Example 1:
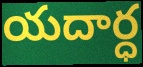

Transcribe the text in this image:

యదార్ధ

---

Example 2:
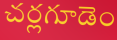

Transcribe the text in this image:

చర్లగూడెం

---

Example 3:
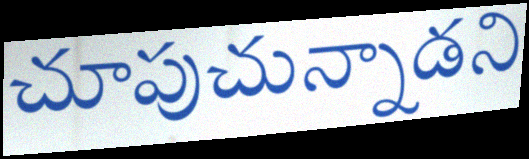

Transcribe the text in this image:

చూపుచున్నాడని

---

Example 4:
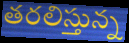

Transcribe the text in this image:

తరలిస్తున్న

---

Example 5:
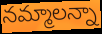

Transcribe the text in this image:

నమ్మాలన్నా